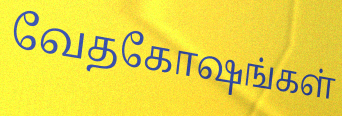
வேதகோஷங்கள்